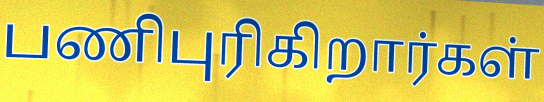
பணிபுரிகிறார்கள்